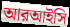
আরআইসি